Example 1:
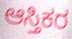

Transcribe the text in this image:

ಆಸ್ತಿಕರ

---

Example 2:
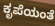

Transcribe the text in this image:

ಕೃಪೆಯಂತೆ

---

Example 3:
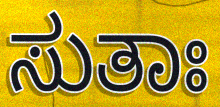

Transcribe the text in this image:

ಸುತಾಃ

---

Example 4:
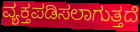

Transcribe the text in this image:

ವ್ಯಕ್ತಪಡಿಸಲಾಗುತ್ತದೆ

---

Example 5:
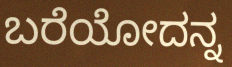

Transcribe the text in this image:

ಬರೆಯೋದನ್ನ